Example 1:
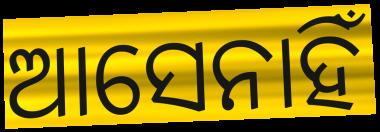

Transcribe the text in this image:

ଆସେନାହିଁ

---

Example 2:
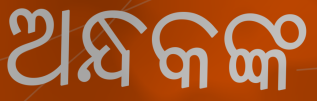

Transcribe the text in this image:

ଅନ୍ଧକଙ୍କ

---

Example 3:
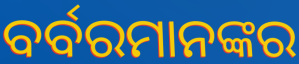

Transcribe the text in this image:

ବର୍ବରମାନଙ୍କର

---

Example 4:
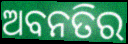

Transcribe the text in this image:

ଅବନତିର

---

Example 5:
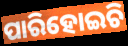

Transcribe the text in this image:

ପାରିହୋଇଚି